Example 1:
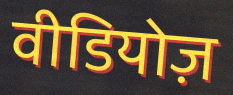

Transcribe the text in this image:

वीडियोज़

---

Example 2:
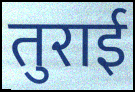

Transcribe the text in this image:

तुराई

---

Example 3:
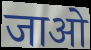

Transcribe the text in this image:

जाओ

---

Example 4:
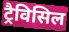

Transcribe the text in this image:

ट्रैविसिल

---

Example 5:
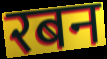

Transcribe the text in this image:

रबन